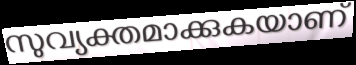
സുവ്യക്തമാക്കുകയാണ്